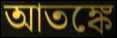
আতঙ্কে